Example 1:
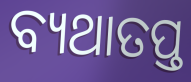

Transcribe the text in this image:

ବ୍ୟଥାତପ୍ତ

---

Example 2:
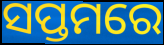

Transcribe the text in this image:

ସପ୍ତମରେ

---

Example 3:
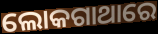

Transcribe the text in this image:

ଲୋକଗାଥାରେ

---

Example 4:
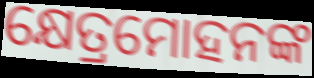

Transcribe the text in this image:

କ୍ଷେତ୍ରମୋହନଙ୍କ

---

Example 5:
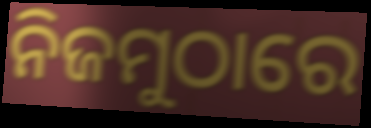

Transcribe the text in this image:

ନିଜମୁଠାରେ